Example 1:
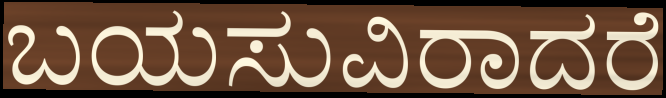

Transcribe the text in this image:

ಬಯಸುವಿರಾದರೆ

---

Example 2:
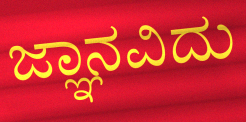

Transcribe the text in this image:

ಜ್ಞಾನವಿದು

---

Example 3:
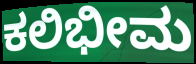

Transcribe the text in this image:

ಕಲಿಭೀಮ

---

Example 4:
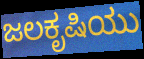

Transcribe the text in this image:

ಜಲಕೃಷಿಯು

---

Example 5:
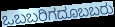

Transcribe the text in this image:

ಒಬಬರಿಗದೂಬಬರು